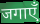
जगाएँ